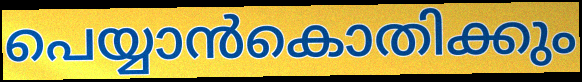
പെയ്യാൻകൊതിക്കും